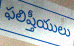
ఫలిష్తీయులు